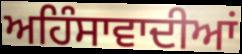
ਅਹਿੰਸਾਵਾਦੀਆਂ